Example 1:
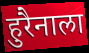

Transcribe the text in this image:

हुरैनाला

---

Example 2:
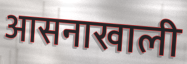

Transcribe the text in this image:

आसनाखाली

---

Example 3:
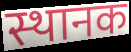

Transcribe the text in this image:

स्थानक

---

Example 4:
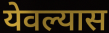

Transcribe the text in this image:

येवल्यास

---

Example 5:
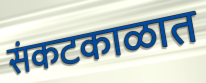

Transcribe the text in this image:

संकटकाळात